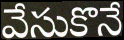
వేసుకొనే